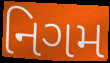
નિગમ